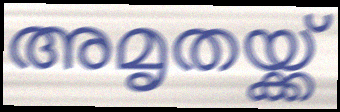
അമൃതയ്ക്ക്